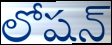
లోషన్